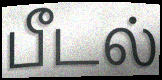
பீடல்